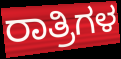
ರಾತ್ರಿಗಳ